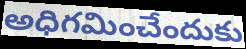
అధిగమించేందుకు